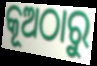
କୂଅଠାରୁ